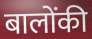
बालोंकी